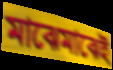
মাঝেমাঝেই